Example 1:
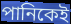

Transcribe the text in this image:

পানিকেই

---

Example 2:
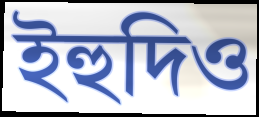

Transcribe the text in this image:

ইহুদিও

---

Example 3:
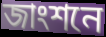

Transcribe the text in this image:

জাংশনে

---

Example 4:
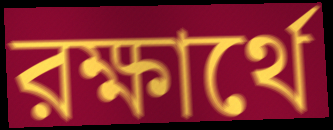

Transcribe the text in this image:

রক্ষার্থে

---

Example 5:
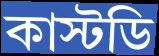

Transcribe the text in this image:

কাস্টডি